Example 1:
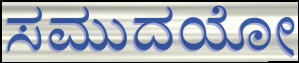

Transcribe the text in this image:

ಸಮುದಯೋ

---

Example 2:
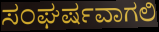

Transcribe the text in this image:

ಸಂಘರ್ಷವಾಗಲಿ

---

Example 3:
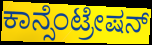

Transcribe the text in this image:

ಕಾನ್ಸೆಂಟ್ರೇಷನ್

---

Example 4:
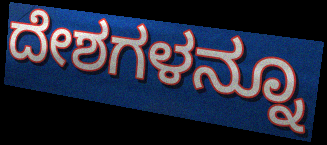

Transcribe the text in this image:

ದೇಶಗಳನ್ನೂ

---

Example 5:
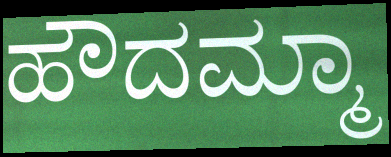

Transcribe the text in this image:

ಹೌದಮ್ಮಾ